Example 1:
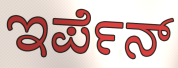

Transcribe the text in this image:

ಇರ್ಪೆನ್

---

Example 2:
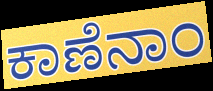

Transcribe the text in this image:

ಕಾಣೆನಾಂ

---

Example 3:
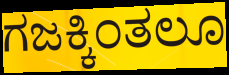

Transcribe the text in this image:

ಗಜಕ್ಕಿಂತಲೂ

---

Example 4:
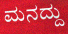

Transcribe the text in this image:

ಮನದ್ದು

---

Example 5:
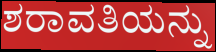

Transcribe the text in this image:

ಶರಾವತಿಯನ್ನು